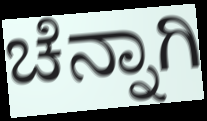
ಚೆನ್ನಾಗಿ